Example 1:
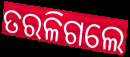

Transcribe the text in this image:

ତରଳିଗଲେ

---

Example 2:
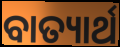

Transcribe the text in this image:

ବାତ୍ୟାର୍ଥ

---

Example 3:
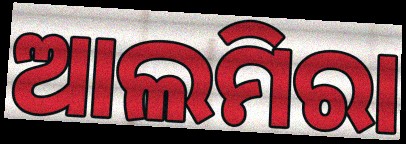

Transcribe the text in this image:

ଆଲମିରା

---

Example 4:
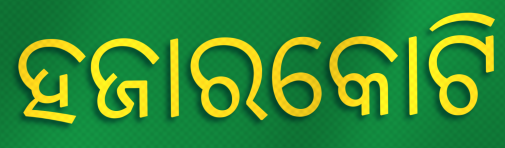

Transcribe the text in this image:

ହଜାରକୋଟି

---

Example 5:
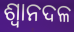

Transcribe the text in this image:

ଶ୍ୱାନଦଳ